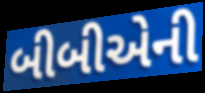
બીબીએની